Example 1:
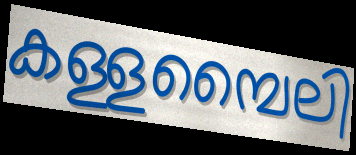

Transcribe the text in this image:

കള്ളമ്പൈലി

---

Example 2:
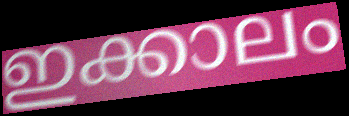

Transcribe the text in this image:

ഇക്കാലം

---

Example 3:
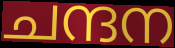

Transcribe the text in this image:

ചന്ദന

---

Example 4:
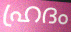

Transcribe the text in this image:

ഹ്രദം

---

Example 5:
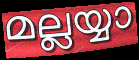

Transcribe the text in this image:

മല്ലയ്യാ